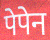
पेपेन